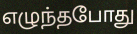
எழுந்தபோது